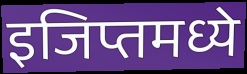
इजिप्तमध्ये